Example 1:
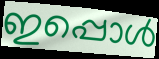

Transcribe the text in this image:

ഇപ്പൊൾ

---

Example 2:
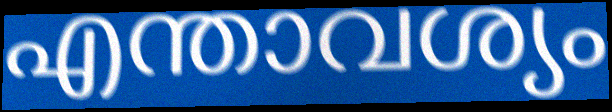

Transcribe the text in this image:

എന്താവശ്യം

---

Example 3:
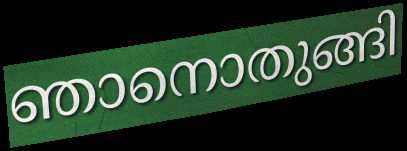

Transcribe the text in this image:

ഞാനൊതുങ്ങി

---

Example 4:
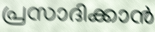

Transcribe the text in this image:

പ്രസാദിക്കാൻ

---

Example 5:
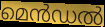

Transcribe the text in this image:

മെൻഡൽ